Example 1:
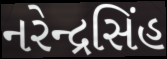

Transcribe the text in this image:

નરેન્દ્રસિંહ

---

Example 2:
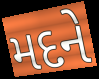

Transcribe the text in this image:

મદને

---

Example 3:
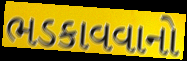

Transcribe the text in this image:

ભડકાવવાનો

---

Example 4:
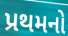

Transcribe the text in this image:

પ્રથમનો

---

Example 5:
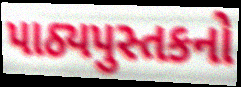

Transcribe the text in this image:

પાઠ્યપુસ્તકનો